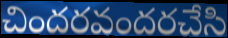
చిందరవందరచేసి